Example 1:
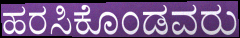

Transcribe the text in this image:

ಹರಸಿಕೊಂಡವರು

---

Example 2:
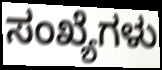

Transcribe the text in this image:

ಸಂಖ್ಯೆಗಳು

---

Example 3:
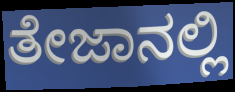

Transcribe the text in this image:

ತೇಜಾನಲ್ಲಿ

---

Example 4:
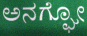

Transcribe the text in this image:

ಅನಗ್ಘೋ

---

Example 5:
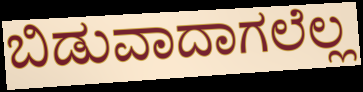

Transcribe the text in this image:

ಬಿಡುವಾದಾಗಲೆಲ್ಲ